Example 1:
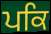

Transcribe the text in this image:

ਪਕਿ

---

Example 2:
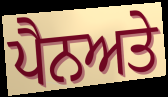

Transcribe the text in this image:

ਪੈਨਅਤੇ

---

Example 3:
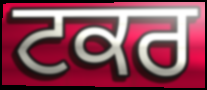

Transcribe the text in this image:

ਟਕਰ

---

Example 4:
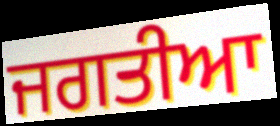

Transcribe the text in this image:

ਜਗਤੀਆ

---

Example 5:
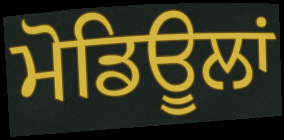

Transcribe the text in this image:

ਮੋਡਿਊਲਾਂ